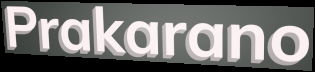
Prakarano